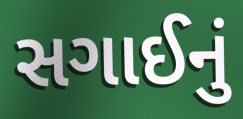
સગાઈનું